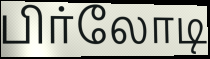
பிர்லோடி